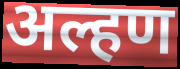
अल्हण